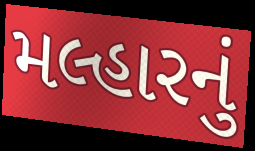
મલ્હારનું